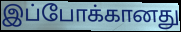
இப்போக்கானது